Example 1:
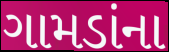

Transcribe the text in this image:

ગામડાંના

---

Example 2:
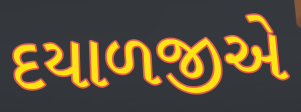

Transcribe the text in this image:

દયાળજીએ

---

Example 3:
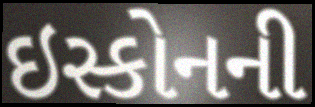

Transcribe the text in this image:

ઇસ્કોનની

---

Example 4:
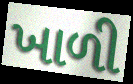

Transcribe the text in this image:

ખાળી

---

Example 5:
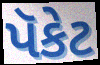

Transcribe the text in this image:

પૅકેટ